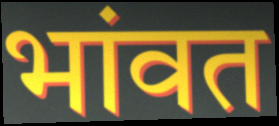
भांवत